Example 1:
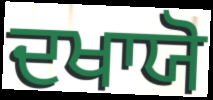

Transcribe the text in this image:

ਦਖਾਯੋ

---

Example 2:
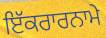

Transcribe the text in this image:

ਇੱਕਰਾਰਨਾਮੇ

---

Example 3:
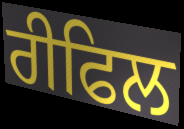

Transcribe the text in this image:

ਰੀਫਿਲ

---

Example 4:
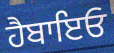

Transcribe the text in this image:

ਹੈਬਾਇਓ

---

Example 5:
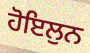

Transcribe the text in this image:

ਹੋਇਲੁਨ